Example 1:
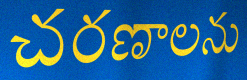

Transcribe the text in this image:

చరణాలను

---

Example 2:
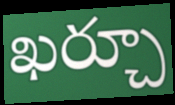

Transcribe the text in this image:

ఖర్చూ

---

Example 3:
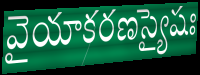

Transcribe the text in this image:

వైయాకరణస్యైషః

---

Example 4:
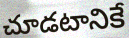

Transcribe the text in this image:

చూడటానికే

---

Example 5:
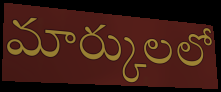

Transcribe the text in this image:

మార్కులలో